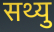
सथ्यु